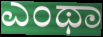
ಎಂಥಾ